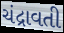
ચંદ્રાવતી